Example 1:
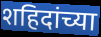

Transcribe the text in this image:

शहिदांच्या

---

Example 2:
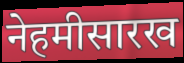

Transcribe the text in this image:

नेहमीसारख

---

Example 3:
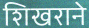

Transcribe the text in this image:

शिखराने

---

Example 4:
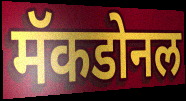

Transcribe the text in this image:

मॅकडोनल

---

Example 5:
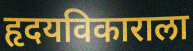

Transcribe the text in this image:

हृदयविकाराला